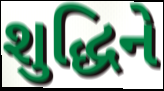
શુદ્ધિને